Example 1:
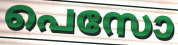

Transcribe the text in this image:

പെസോ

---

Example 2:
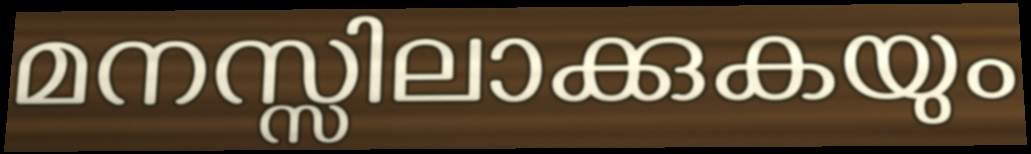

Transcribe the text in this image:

മനസ്സിലാക്കുകയും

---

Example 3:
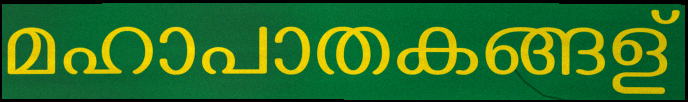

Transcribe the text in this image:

മഹാപാതകങ്ങള്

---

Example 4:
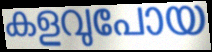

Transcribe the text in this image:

കളവുപോയ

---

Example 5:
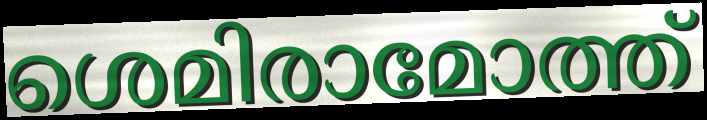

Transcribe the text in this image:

ശെമിരാമോത്ത്